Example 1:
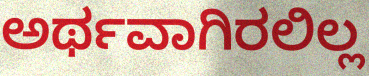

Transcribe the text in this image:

ಅರ್ಥವಾಗಿರಲಿಲ್ಲ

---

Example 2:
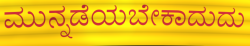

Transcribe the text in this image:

ಮುನ್ನಡೆಯಬೇಕಾದುದು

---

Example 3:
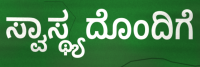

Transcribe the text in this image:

ಸ್ವಾಸ್ಥ್ಯದೊಂದಿಗೆ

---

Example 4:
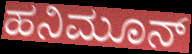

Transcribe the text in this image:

ಹನಿಮೂನ್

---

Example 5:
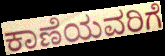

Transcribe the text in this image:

ಕಾಣೆಯವರಿಗೆ